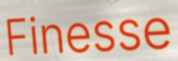
Finesse